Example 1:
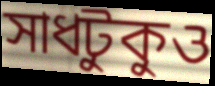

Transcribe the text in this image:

সাধটুকুও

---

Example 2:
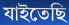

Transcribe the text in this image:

যাইতেছি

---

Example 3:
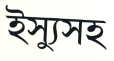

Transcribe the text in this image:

ইস্যুসহ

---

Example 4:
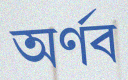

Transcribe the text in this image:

অর্ণব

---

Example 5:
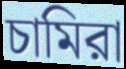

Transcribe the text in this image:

চামিরা